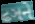
ઢગને